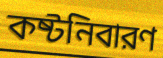
কষ্টনিবারণ